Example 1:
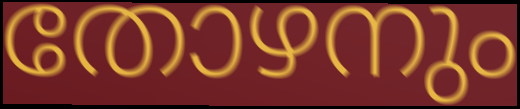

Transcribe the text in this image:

തോഴനും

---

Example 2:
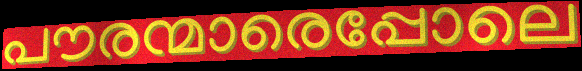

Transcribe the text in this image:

പൗരന്മാരെപ്പോലെ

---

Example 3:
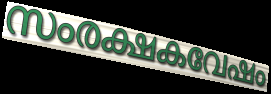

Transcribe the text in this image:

സംരക്ഷകവേഷം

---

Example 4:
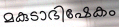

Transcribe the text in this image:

മകുടാഭിഷേകം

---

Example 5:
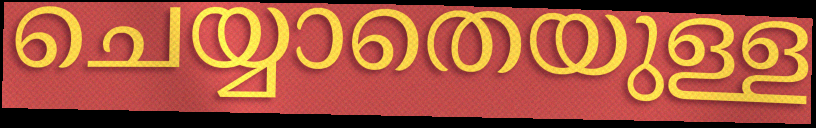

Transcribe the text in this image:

ചെയ്യാതെയുള്ള